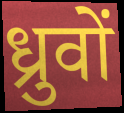
ध्रुवों